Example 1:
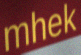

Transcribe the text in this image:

mhek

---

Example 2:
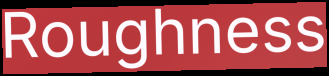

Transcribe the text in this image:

Roughness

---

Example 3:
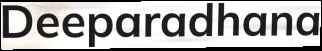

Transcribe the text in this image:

Deeparadhana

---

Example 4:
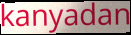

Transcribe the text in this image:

kanyadan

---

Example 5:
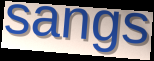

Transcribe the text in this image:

sangs